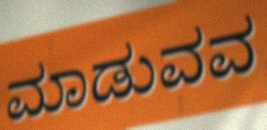
ಮಾಡುವವ